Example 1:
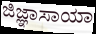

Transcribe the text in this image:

ಜಿಜ್ಞಾಸಾಯಾ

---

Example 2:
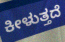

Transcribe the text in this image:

ಕೀಳುತ್ತದೆ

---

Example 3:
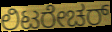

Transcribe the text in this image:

ಲಿಟರೇಚರ್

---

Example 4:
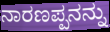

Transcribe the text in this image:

ನಾರಣಪ್ಪನನ್ನು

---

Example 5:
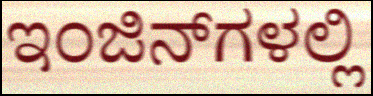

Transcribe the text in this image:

ಇಂಜಿನ್‌ಗಳಲ್ಲಿ